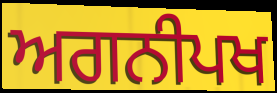
ਅਗਨੀਪਖ